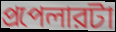
প্রপেলারটা